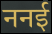
ननई